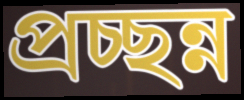
প্রচ্ছন্ন